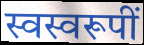
स्वस्वरूपीं